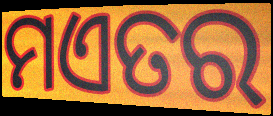
ମଏତର